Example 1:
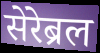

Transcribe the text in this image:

सेरेब्रल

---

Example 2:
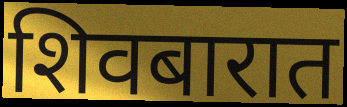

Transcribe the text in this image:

शिवबारात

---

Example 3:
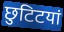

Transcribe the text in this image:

छुटिटयां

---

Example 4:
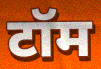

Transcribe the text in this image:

टॉम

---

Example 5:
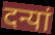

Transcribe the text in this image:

दन्यां